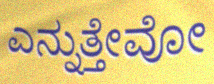
ಎನ್ನುತ್ತೇವೋ